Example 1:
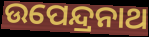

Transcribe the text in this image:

ଉପେନ୍ଦ୍ରନାଥ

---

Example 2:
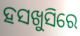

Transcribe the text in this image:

ହସଖୁସିରେ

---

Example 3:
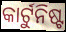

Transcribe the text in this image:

କାର୍ଟୁନିଷ୍ଟ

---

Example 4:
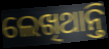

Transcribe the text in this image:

ଲେଖିଥାନ୍ତି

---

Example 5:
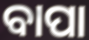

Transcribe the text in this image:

ବାପା